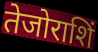
तेजोराशिं